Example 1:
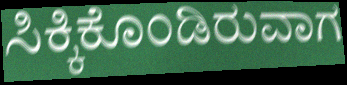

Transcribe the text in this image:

ಸಿಕ್ಕಿಕೊಂಡಿರುವಾಗ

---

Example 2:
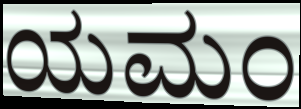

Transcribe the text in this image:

ಯಮಂ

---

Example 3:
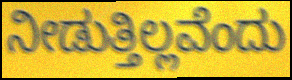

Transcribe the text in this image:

ನೀಡುತ್ತಿಲ್ಲವೆಂದು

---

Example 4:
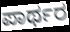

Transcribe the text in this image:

ಪಾರ್ಥರ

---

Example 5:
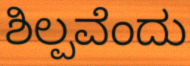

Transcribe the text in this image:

ಶಿಲ್ಪವೆಂದು